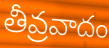
తీవ్రవాదం